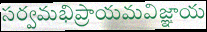
సర్వమభిప్రాయమవిజ్ఞాయ